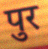
पुर